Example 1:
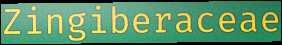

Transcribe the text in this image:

Zingiberaceae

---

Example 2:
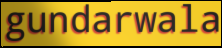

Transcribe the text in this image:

gundarwala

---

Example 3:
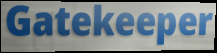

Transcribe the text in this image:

Gatekeeper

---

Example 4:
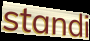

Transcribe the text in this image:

standi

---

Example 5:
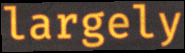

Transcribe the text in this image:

largely